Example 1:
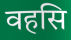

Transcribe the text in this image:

वहसि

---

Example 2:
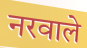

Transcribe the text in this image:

नरवाले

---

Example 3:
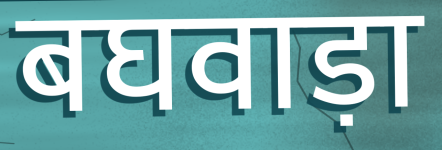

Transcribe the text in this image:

बघवाड़ा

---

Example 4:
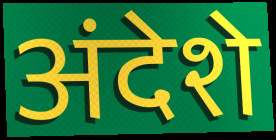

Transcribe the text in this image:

अंदेशे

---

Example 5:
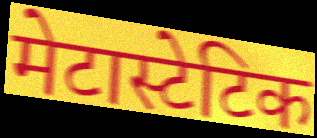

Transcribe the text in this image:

मेटास्टेटिक